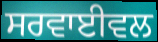
ਸਰਵਾਈਵਲ